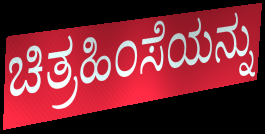
ಚಿತ್ರಹಿಂಸೆಯನ್ನು